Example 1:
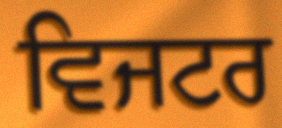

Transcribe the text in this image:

ਵਿਜਟਰ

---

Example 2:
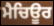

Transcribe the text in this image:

ਮੈਚਿਊਰ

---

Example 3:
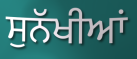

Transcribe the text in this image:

ਸੁਨੱਖੀਆਂ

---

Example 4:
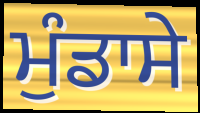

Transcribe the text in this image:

ਮੁੰਡਾਸੇ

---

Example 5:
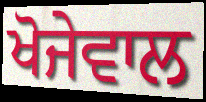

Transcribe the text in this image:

ਖੋਜੇਵਾਲ